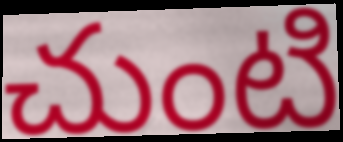
చుంటి